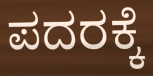
ಪದರಕ್ಕೆ